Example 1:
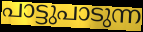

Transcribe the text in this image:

പാട്ടുപാടുന്ന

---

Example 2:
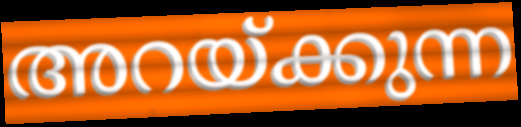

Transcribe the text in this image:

അറയ്ക്കുന്ന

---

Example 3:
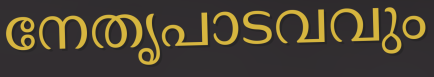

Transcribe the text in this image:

നേതൃപാടവവും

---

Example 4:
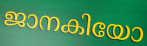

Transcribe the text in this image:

ജാനകിയോ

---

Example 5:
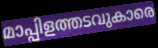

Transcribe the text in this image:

മാപ്പിളത്തടവുകാരെ